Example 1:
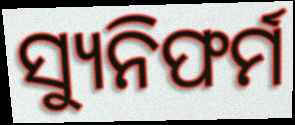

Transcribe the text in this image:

ସ୍ୟୁନିଫର୍ମ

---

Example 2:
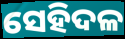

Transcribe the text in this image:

ସେହିଦଳ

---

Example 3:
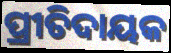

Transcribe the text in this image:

ପ୍ରୀତିଦାୟକ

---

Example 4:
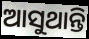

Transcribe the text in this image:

ଆସୁଥାନ୍ତି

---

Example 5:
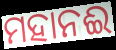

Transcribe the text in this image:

ମହାନଈ